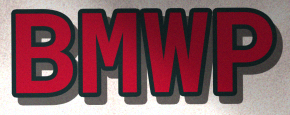
BMWP